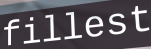
fillest